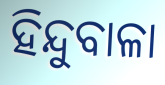
ହିନ୍ଦୁବାଳା